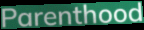
Parenthood